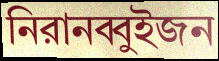
নিরানব্বুইজন